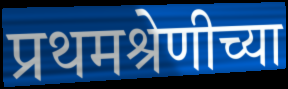
प्रथमश्रेणीच्या